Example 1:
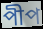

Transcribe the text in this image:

পীপ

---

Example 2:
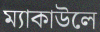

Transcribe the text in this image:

ম্যাকাউলে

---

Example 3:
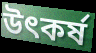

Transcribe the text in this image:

উৎকর্ষ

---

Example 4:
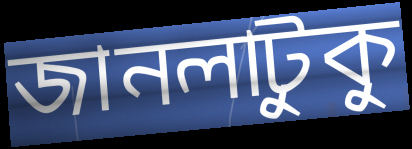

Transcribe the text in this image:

জানলাটুকু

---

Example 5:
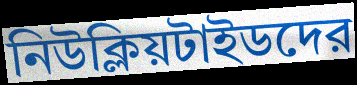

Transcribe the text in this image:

নিউক্লিয়টাইডদের